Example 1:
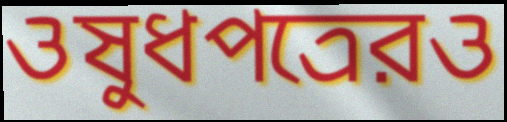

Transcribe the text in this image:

ওষুধপত্রেরও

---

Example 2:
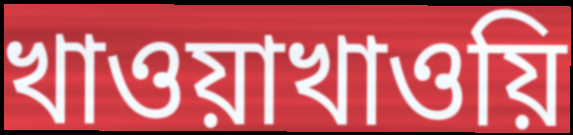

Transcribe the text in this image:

খাওয়াখাওয়ি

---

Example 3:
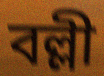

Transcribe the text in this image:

বল্লী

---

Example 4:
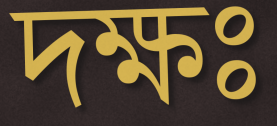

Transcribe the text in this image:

দক্ষঃ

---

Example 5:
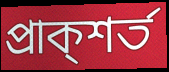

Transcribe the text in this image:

প্রাক্‌শর্ত